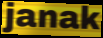
janak